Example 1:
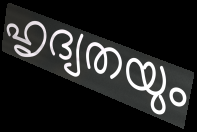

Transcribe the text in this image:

ഹൃദ്യതയും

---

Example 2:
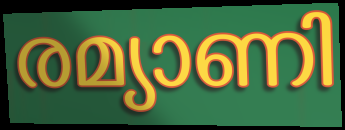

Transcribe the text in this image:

രമ്യാണി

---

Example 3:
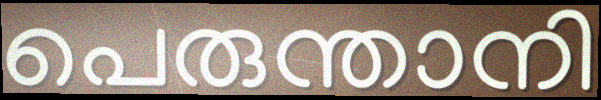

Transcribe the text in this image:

പെരുന്താനി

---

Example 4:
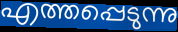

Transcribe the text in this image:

എത്തപ്പെടുന്നു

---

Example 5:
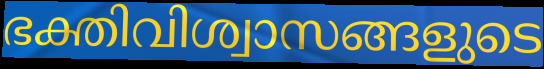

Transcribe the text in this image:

ഭക്തിവിശ്വാസങ്ങളുടെ